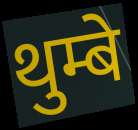
थुम्बे